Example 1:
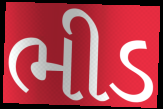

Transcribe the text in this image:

ભીડ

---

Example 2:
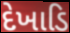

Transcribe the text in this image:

દેખાડિ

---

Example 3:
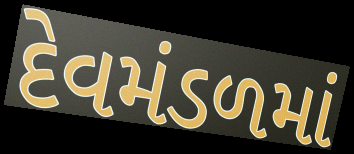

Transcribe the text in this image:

દેવમંડળમાં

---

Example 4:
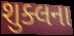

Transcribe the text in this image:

શુક્લના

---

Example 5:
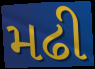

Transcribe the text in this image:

મઢી